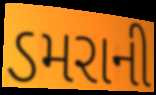
ડમરાની